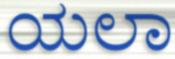
ಯಲಾ